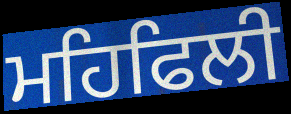
ਮਹਿਫਿਲੀ